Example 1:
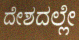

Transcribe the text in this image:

ದೇಶದಲ್ಲೇ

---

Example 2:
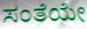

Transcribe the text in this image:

ಸಂತೆಯೇ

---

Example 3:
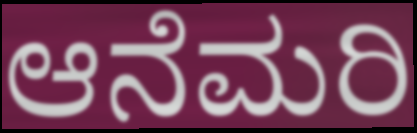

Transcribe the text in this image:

ಆನೆಮರಿ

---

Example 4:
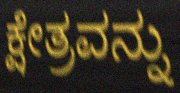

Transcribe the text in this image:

ಕ್ಷೇತ್ರವನ್ನು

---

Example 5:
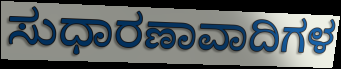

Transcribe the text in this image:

ಸುಧಾರಣಾವಾದಿಗಳ